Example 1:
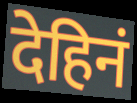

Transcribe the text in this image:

देहिनं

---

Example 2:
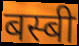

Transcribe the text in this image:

बस्बी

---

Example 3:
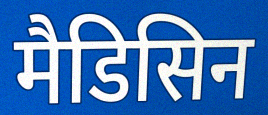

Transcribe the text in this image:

मैडिसिन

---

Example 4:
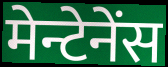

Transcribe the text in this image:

मेन्टेनेंस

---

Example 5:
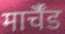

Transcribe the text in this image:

मार्चैंड